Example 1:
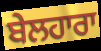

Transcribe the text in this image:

ਬੇਲਹਾਰਾ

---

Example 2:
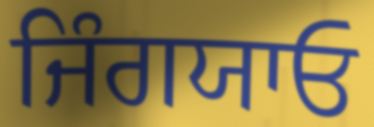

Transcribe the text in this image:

ਜਿੰਗਯਾਓ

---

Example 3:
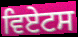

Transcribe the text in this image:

ਵਿਏਟਸ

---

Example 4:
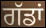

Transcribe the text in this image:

ਗੱਡਾਂ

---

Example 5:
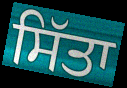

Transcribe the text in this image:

ਸਿੱਤਾ